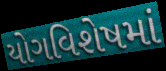
યોગવિશેષમાં